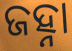
ଜହ୍ନା